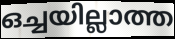
ഒച്ചയില്ലാത്ത